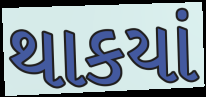
થાકયાં